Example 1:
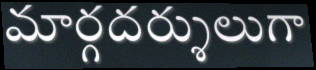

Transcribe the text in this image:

మార్గదర్శులుగా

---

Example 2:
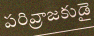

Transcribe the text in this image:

పరివ్రాజకుడై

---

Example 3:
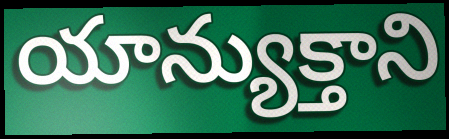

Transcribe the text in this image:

యాన్యుక్తాని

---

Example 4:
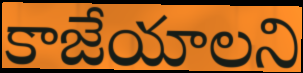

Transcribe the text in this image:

కాజేయాలని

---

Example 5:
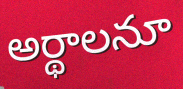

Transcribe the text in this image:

అర్థాలనూ